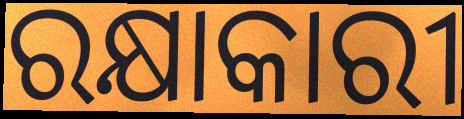
ରକ୍ଷାକାରୀ